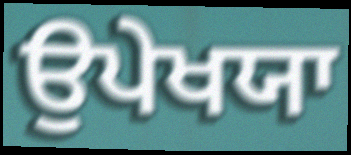
ਉਪੇਖਯਾ